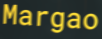
Margao